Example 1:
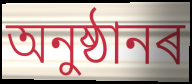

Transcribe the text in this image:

অনুষ্ঠানৰ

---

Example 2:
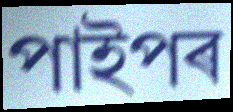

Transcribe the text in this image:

পাইপৰ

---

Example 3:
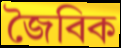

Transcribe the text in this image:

জৈবিক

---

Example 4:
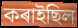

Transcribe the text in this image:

কৰাইছিল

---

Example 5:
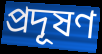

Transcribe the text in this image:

প্ৰদূষণ